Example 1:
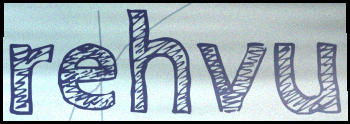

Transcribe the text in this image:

rehvu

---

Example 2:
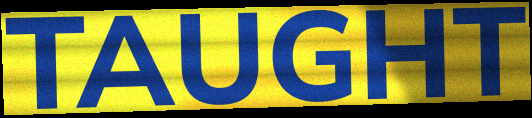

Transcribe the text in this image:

TAUGHT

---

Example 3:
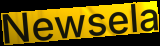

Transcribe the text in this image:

Newsela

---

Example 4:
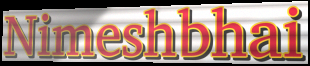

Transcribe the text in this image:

Nimeshbhai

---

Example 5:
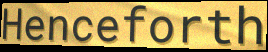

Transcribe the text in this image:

Henceforth